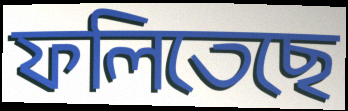
ফলিতেছে